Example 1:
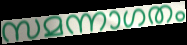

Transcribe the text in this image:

സമന്നാഗതം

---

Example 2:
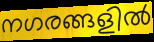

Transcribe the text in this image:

നഗരങ്ങളിൽ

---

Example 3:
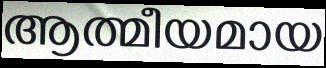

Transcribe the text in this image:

ആത്മീയമായ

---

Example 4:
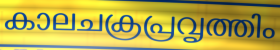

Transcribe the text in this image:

കാലചക്രപ്രവൃത്തിം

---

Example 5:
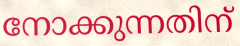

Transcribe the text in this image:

നോക്കുന്നതിന്